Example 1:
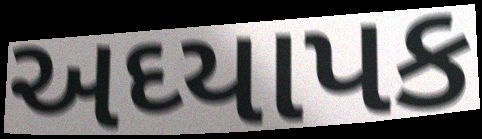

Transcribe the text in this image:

અઘ્યાપક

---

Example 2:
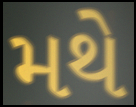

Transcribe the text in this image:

મથે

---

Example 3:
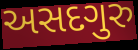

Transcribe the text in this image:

અસદગુરુ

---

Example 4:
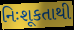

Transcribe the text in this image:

નિઃશૂકતાથી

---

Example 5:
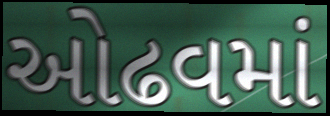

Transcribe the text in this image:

ઓઢવમાં